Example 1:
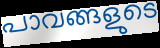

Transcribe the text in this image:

പാവങ്ങളുടെ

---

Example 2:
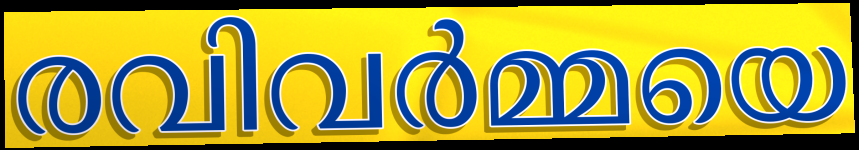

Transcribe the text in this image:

രവിവർമ്മയെ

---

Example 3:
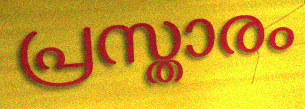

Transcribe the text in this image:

പ്രസ്താരം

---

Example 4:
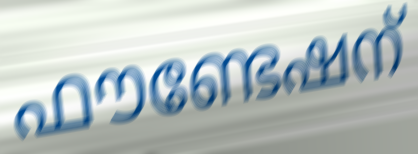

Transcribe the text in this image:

ഫൗണ്ടേഷന്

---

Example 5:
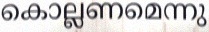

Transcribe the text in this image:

കൊല്ലണമെന്നു